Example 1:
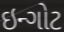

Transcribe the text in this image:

ઇન્ગોટ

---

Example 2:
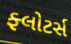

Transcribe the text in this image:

ફ્લોટર્સ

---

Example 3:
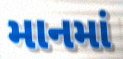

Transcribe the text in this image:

માનમાં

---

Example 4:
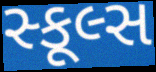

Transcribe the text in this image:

સ્કૂલ્સ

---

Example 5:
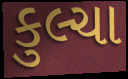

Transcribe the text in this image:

કુલ્ચા